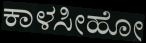
ಕಾಳಸೀಹೋ